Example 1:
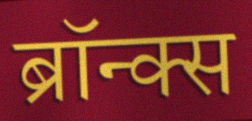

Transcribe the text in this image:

ब्रॉन्क्स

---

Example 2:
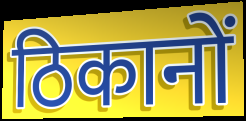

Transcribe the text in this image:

ठिकानों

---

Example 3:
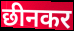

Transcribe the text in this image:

छीनकर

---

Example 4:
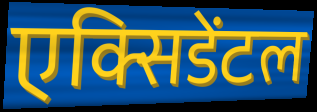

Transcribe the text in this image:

एक्सिडेंटल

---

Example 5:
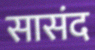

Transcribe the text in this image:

सासंद